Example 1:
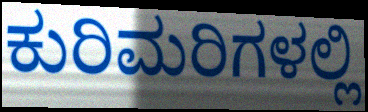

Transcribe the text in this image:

ಕುರಿಮರಿಗಳಲ್ಲಿ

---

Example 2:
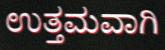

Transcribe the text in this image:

ಉತ್ತಮವಾಗಿ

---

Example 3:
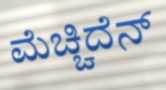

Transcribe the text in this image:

ಮೆಚ್ಚಿದೆನ್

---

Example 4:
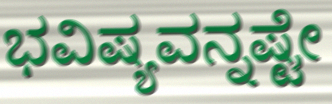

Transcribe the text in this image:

ಭವಿಷ್ಯವನ್ನಷ್ಟೇ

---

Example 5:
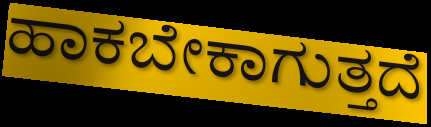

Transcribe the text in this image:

ಹಾಕಬೇಕಾಗುತ್ತದೆ